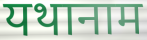
यथानाम